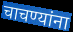
चाचण्यांना